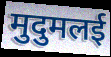
मुदुमलई